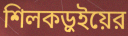
শিলকড়ুইয়ের